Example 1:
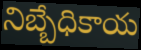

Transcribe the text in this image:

నిబ్బేధికాయ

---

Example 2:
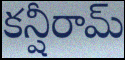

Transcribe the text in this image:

కన్షీరామ్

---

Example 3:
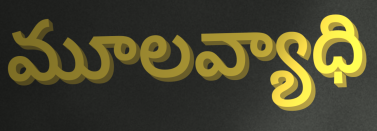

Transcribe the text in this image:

మూలవ్యాధి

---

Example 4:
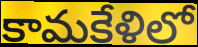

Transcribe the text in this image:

కామకేళిలో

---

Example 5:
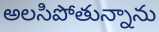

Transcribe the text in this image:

అలసిపోతున్నాను